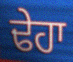
ਢੇਹਾ